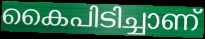
കൈപിടിച്ചാണ്